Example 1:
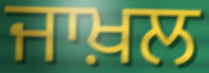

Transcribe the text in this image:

ਜਾਖ਼ਲ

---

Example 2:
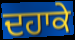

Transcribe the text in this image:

ਦਹਾਕੇ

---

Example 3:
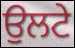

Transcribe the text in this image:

ਉਲਟੇ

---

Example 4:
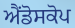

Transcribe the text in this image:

ਐਂਡੋਸਕੋਪ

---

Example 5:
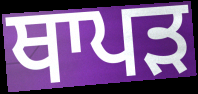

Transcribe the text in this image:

ਥਾਪੜ